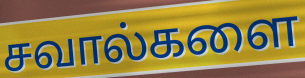
சவால்களை